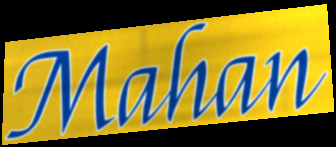
Mahan